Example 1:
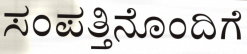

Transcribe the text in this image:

ಸಂಪತ್ತಿನೊಂದಿಗೆ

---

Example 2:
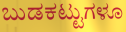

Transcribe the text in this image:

ಬುಡಕಟ್ಟುಗಳೂ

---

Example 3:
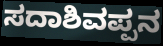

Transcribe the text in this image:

ಸದಾಶಿವಪ್ಪನ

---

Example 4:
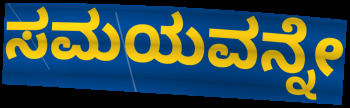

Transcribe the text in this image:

ಸಮಯವನ್ನೇ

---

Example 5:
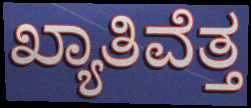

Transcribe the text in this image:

ಖ್ಯಾತಿವೆತ್ತ